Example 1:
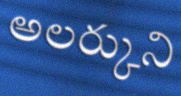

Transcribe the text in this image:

అలర్కుని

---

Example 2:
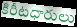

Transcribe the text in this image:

కిరీటధారులు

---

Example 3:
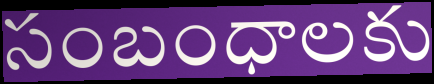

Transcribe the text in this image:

సంబంధాలకు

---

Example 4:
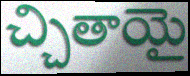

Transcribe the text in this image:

చ్చితాయై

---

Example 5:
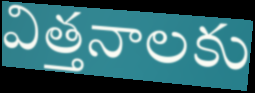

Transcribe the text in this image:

విత్తనాలకు